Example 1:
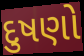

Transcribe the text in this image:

દુષણો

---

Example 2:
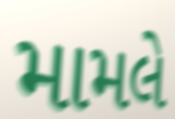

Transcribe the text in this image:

મામલે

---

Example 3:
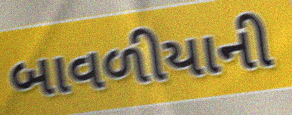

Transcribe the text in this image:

બાવળીયાની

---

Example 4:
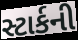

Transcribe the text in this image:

સ્ટાર્કની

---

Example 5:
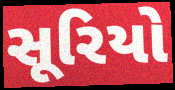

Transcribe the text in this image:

સૂરિયો